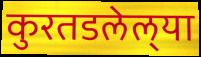
कुरतडलेल्या